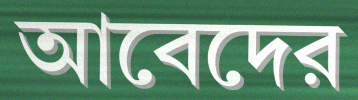
আবেদের